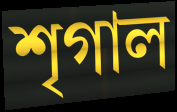
শৃগাল